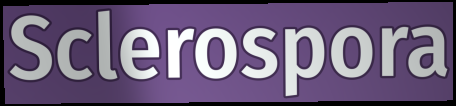
Sclerospora